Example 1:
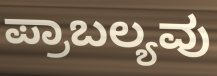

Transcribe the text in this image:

ಪ್ರಾಬಲ್ಯವು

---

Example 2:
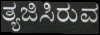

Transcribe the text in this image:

ತ್ಯಜಿಸಿರುವ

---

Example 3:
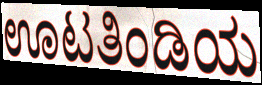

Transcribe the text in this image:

ಊಟತಿಂಡಿಯ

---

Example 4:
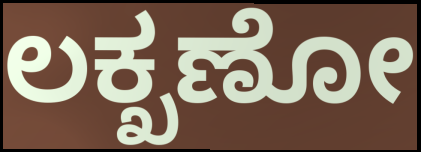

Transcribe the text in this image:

ಲಕ್ಖಣೋ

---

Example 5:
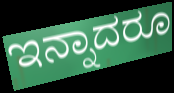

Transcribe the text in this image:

ಇನ್ನಾದರೂ